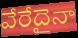
వేరేదైనా